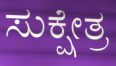
ಸುಕ್ಷೇತ್ರ